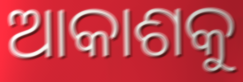
ଆକାଶକୁ